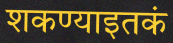
शकण्याइतकं